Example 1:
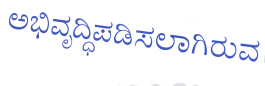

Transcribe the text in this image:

ಅಭಿವೃದ್ಧಿಪಡಿಸಲಾಗಿರುವ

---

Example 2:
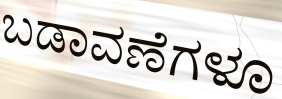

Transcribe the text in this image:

ಬಡಾವಣೆಗಳೂ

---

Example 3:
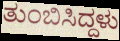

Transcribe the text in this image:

ತುಂಬಿಸಿದ್ದಳು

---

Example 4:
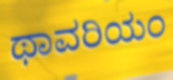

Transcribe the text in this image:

ಥಾವರಿಯಂ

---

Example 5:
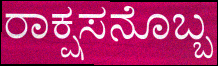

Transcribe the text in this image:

ರಾಕ್ಷಸನೊಬ್ಬ